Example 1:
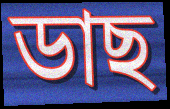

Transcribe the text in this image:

ডাছ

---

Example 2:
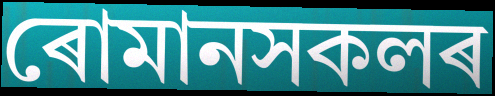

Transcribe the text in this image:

ৰোমানসকলৰ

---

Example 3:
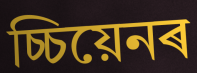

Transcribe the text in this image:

চ্চিয়েনৰ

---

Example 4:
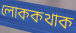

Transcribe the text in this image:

লোককথাক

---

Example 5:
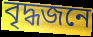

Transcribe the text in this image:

বৃদ্ধজনে